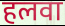
हलवा